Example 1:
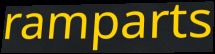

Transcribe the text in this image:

ramparts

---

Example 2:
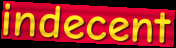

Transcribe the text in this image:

indecent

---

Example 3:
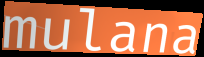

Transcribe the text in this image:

mulana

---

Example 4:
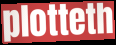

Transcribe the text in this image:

plotteth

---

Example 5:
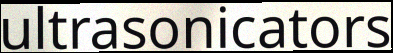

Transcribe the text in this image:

ultrasonicators